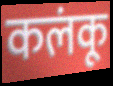
कलंकू